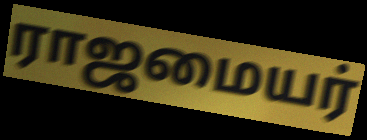
ராஜமையர்